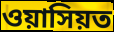
ওয়াসিয়ত